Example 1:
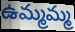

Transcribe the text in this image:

ఉమ్మమ్మ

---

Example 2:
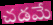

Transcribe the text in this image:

చడమే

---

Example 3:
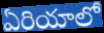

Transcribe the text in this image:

ఏరియాలో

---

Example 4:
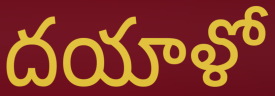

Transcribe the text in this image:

దయాళో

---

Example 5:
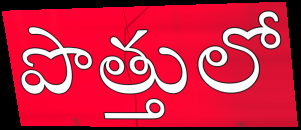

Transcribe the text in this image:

పొత్తులో